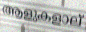
ആളുകളാല്